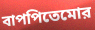
বাপপিতেমোর